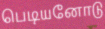
பெடியனோடு